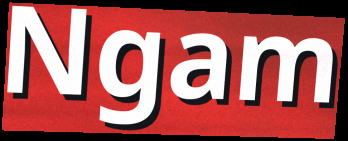
Ngam